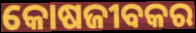
କୋଷଜୀବକର